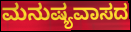
ಮನುಷ್ಯವಾಸದ